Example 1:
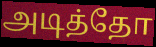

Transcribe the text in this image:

அடித்தோ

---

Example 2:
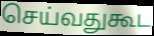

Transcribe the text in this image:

செய்வதுகூட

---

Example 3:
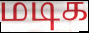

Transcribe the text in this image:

மடிக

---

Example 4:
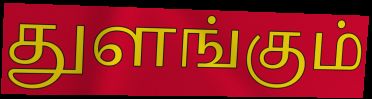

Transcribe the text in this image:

துளங்கும்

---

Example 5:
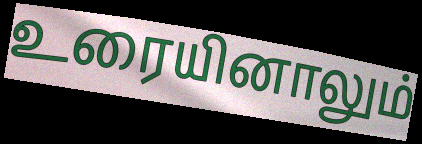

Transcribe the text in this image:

உரையினாலும்